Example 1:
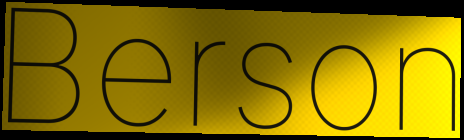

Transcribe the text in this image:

Berson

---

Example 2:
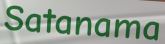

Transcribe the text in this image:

Satanama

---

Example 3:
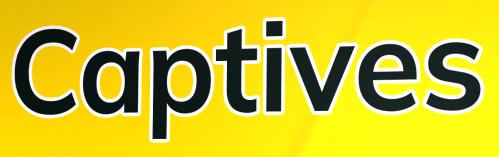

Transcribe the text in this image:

Captives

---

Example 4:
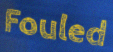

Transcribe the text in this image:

Fouled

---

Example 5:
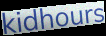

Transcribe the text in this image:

kidhours